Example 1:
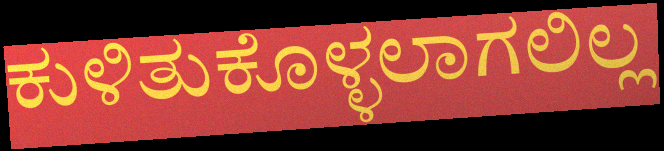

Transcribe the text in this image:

ಕುಳಿತುಕೊಳ್ಳಲಾಗಲಿಲ್ಲ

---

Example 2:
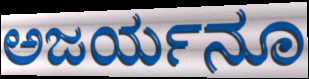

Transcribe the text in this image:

ಅಜರ್ಯನೂ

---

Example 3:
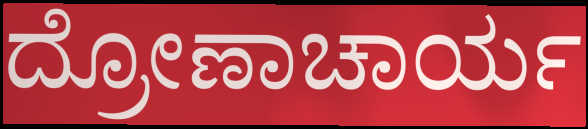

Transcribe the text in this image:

ದ್ರೋಣಾಚಾರ್ಯ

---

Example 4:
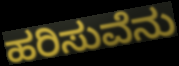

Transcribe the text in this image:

ಹರಿಸುವೆನು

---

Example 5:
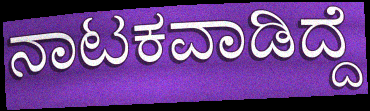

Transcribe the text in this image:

ನಾಟಕವಾಡಿದ್ದೆ